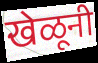
खेळूनी